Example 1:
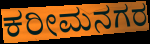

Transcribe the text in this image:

ಕರೀಮನಗರ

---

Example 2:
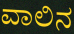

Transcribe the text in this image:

ವಾಲಿನ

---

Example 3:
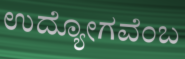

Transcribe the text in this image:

ಉದ್ಯೋಗವೆಂಬ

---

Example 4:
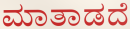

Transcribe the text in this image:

ಮಾತಾಡದೆ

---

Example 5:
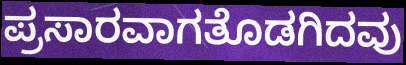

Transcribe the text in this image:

ಪ್ರಸಾರವಾಗತೊಡಗಿದವು